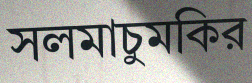
সলমাচুমকির